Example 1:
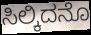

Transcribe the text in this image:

ಸಿಲ್ಕಿದನೊ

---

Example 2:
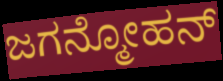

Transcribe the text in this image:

ಜಗನ್ಮೋಹನ್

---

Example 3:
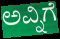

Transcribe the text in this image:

ಅವ್ನಿಗೆ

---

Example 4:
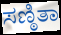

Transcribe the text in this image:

ಸಣ್ಠಿತಾ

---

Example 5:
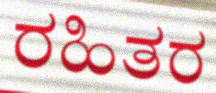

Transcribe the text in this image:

ರಹಿತರ